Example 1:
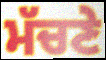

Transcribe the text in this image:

ਮੱਚਣੇ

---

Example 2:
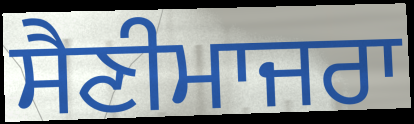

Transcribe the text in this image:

ਸੈਣੀਮਾਜਰਾ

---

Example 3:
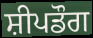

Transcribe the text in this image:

ਸ਼ੀਪਡੌਗ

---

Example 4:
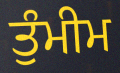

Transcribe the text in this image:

ਤੁੰਮੀਮ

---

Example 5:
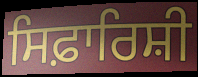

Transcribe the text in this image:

ਸਿਫ਼ਾਰਿਸ਼ੀ